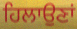
ਹਿਲਾਉਣਾਂ